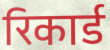
रिकार्ड